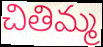
చితిమ్మ